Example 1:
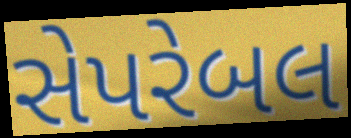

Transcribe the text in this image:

સેપરેબલ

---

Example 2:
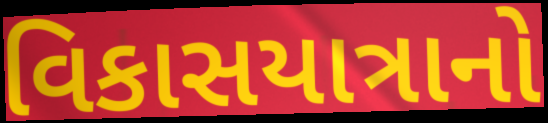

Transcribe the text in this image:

વિકાસયાત્રાનો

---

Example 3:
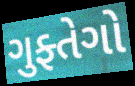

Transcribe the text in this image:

ગુફ્તેગો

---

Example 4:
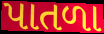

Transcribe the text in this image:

પાતળા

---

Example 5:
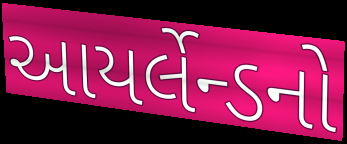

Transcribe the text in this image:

આયર્લેન્ડનો